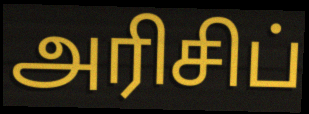
அரிசிப்